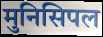
मुनिसिपल